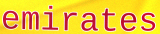
emirates